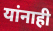
यांनाही